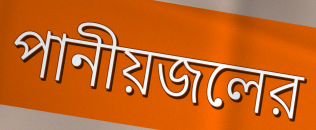
পানীয়জলের